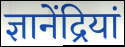
ज्ञानेंद्रियां